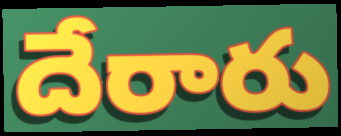
దేరారు